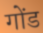
गोंड